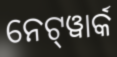
ନେଟ୍‌ୱାର୍କ